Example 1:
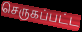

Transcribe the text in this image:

செருகப்பட்ட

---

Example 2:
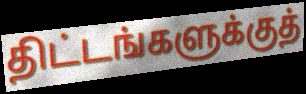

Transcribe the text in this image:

திட்டங்களுக்குத்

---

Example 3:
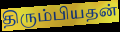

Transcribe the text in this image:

திரும்பியதன்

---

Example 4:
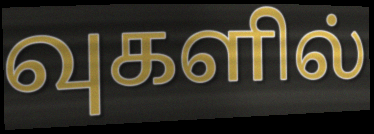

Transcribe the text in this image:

வுகளில்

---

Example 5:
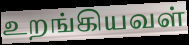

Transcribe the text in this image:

உறங்கியவள்